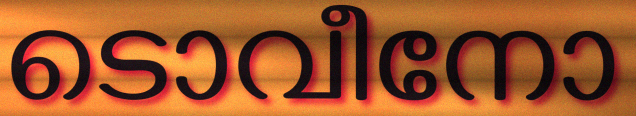
ടൊവീനോ